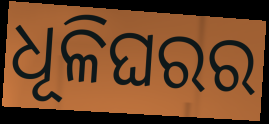
ଧୂଳିଘରର